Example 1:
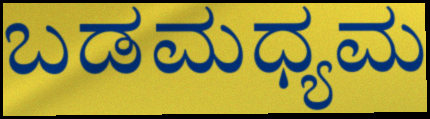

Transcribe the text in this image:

ಬಡಮಧ್ಯಮ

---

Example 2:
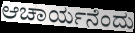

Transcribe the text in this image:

ಆಚಾರ್ಯನೆಂದು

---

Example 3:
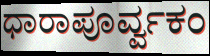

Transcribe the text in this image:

ಧಾರಾಪೂರ್ವ್ವಕಂ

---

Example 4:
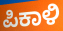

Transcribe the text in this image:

ಪಿಕಾಳಿ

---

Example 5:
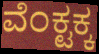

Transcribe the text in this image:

ವೆಂಕ್ಟಕ್ಕ